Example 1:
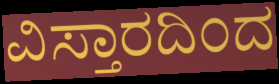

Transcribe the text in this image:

ವಿಸ್ತಾರದಿಂದ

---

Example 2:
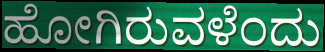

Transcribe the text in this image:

ಹೋಗಿರುವಳೆಂದು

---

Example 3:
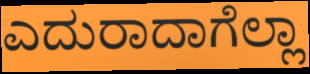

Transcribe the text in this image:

ಎದುರಾದಾಗೆಲ್ಲಾ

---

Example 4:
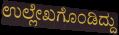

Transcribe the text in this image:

ಉಲ್ಲೇಖಗೊಂಡಿದ್ದು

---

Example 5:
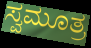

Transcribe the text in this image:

ಸ್ವಮೂತ್ರ